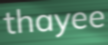
thayee